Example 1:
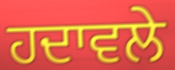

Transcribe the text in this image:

ਹਦਾਵਲੇ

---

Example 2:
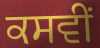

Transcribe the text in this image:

ਕਸਵੀਂ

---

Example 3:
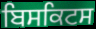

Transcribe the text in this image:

ਬਿਸਕਿਟਸ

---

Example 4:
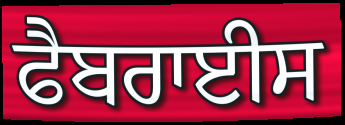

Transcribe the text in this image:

ਫੈਬਰਾਈਸ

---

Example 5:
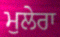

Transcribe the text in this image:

ਮੁਲੇਰਾ